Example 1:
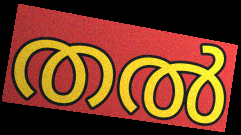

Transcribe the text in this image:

തൽ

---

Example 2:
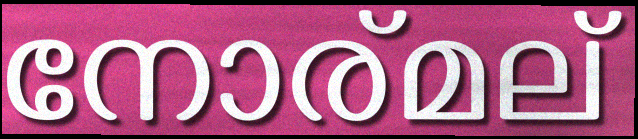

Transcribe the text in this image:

നോര്മല്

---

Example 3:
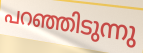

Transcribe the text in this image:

പറഞ്ഞിടുന്നു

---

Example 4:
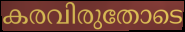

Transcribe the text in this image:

കരവിരുതോടെ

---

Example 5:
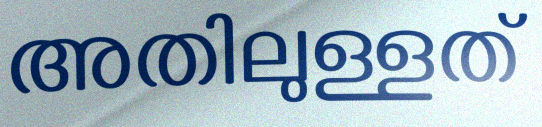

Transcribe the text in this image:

അതിലുള്ളത്